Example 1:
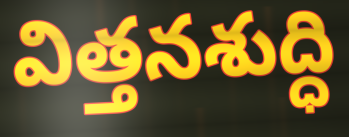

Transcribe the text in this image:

విత్తనశుద్ధి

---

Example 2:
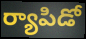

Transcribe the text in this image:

ర్యాపిడో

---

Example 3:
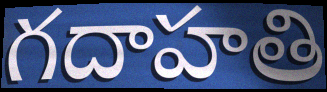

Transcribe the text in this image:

గదాహతి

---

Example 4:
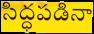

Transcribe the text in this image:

సిద్ధపడినా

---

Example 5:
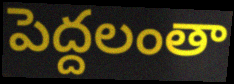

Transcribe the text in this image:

పెద్దలంతా